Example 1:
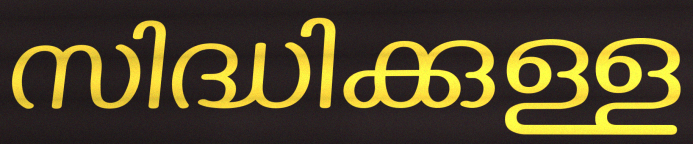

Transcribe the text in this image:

സിദ്ധിക്കുള്ള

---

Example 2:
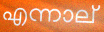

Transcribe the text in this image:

എന്നാല്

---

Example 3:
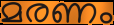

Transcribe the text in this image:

മരണം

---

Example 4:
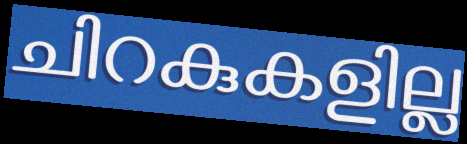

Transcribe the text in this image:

ചിറകുകളില്ല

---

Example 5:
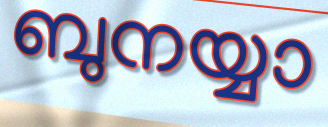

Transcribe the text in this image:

ബുനയ്യാ